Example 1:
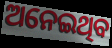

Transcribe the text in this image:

ଅନେଇଥିବ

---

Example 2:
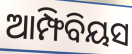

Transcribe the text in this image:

ଆମ୍ଫିବିୟସ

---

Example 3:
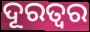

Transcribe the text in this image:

ଦୂରତ୍ଵର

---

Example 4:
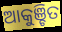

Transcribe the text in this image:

ଆକୁଞ୍ଚିତ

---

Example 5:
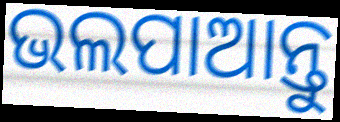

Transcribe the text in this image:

ଭଲପାଆନ୍ତୁ